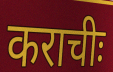
कराचीः